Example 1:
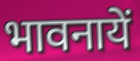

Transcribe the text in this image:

भावनायें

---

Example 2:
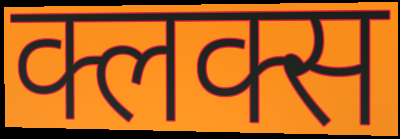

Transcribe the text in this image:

क्लक्स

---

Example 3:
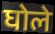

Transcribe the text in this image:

घोले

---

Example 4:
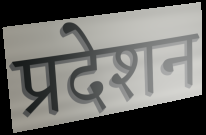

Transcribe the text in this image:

प्रदेशन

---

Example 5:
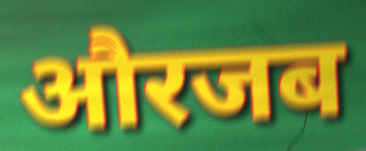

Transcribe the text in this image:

औरजब